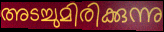
അടച്ചുമിരിക്കുന്നു